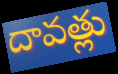
దావత్లు